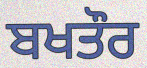
ਬਖਤੌਰ